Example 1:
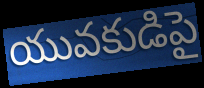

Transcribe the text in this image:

యువకుడిపై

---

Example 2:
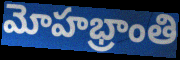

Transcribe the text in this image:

మోహభ్రాంతి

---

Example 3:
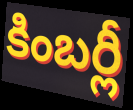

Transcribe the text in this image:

కింబర్లీ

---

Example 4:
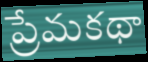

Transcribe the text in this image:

ప్రేమకథా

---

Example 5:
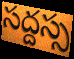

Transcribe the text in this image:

సద్దస్స